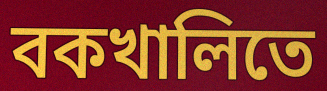
বকখালিতে